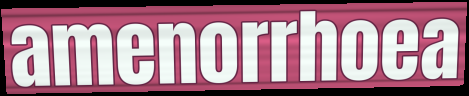
amenorrhoea